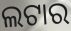
ଲଟାର